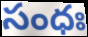
సంధః